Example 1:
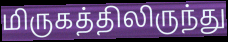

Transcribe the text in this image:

மிருகத்திலிருந்து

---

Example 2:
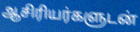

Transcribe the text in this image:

ஆசிரியர்களுடன்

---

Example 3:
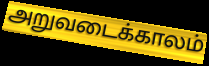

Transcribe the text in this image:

அறுவடைக்காலம்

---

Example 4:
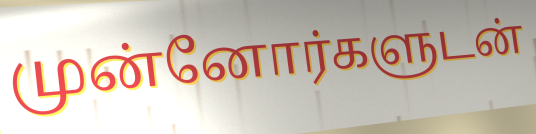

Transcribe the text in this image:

முன்னோர்களுடன்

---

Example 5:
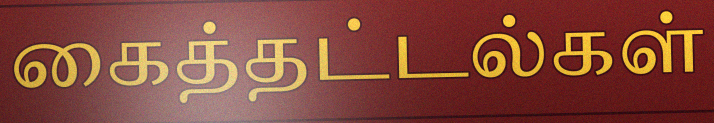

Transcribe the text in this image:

கைத்தட்டல்கள்